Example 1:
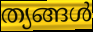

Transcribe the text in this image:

ത്യങ്ങൾ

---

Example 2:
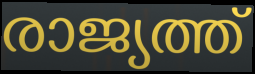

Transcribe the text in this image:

രാജ്യത്ത്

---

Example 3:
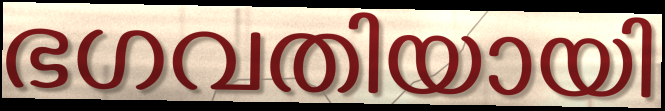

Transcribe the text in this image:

ഭഗവതിയായി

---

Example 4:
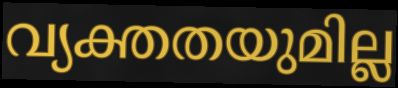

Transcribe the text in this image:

വ്യക്തതയുമില്ല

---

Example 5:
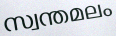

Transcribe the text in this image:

സ്വന്തമലം